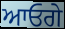
ਆਓਗੇ